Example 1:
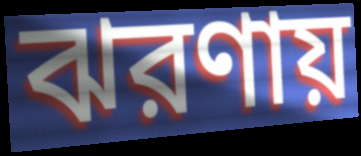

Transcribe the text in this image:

ঝরণায়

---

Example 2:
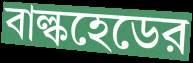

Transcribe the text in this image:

বাল্কহেডের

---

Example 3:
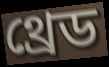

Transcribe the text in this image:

থ্রেড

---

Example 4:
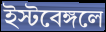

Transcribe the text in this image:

ইস্টবেঙ্গলে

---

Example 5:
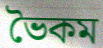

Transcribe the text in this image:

ভৈকম